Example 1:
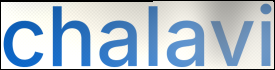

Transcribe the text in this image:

chalavi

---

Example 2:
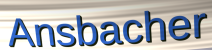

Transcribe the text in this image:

Ansbacher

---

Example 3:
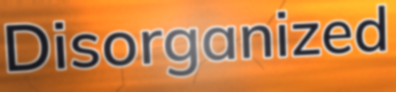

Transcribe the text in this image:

Disorganized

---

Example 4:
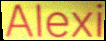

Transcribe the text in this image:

Alexi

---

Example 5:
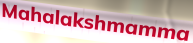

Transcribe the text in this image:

Mahalakshmamma